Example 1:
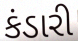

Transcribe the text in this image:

કંડારી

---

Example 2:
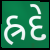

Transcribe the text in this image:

હ્રદે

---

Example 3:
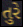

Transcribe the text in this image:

તુરે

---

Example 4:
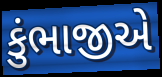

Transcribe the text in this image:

કુંભાજીએ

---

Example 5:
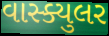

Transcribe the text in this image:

વાસ્ક્યુલર